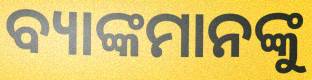
ବ୍ୟାଙ୍କମାନଙ୍କୁ